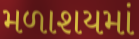
મળાશયમાં